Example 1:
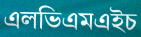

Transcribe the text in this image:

এলভিএমএইচ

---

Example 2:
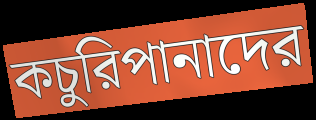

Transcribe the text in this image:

কচুরিপানাদের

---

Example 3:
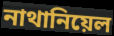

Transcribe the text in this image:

নাথানিয়েল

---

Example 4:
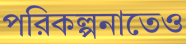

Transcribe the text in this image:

পরিকল্পনাতেও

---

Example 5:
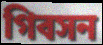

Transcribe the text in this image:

গিবসন